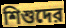
শিশুদের